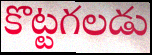
కొట్టగలడు